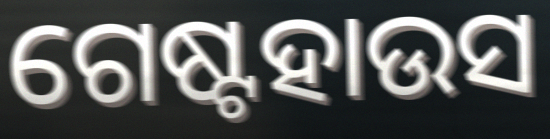
ଗେଷ୍ଟହାଉସ